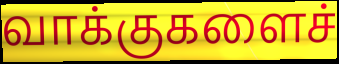
வாக்குகளைச்